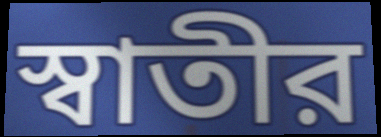
স্বাতীর